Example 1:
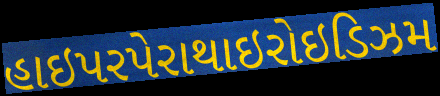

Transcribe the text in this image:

હાઇપરપેરાથાઇરોઇડિઝમ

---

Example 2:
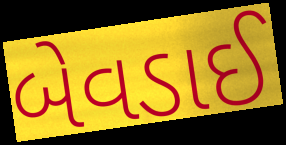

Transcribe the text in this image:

બેવડાઈ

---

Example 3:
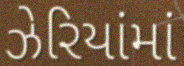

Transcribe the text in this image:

ઝેરિયાંમાં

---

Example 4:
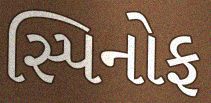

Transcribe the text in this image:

સ્પિનોફ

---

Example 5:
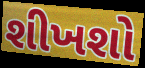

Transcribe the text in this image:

શીખશો